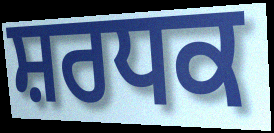
ਸ਼ਰਧਕ